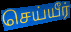
செய்யீர்